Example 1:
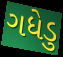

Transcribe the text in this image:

ગધેડુ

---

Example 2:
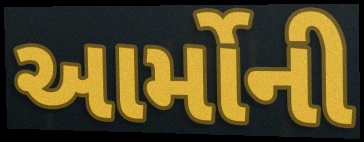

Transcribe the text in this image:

આર્મોની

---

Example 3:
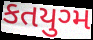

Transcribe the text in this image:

કતયુગ્મ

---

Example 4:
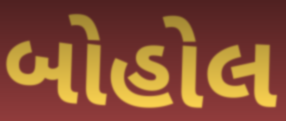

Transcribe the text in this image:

બોહોલ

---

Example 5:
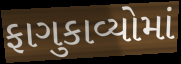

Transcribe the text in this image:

ફાગુકાવ્યોમાં